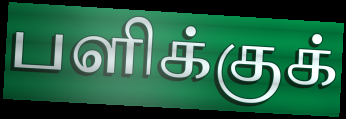
பளிக்குக்